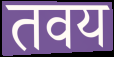
तवय